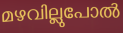
മഴവില്ലുപോൽ